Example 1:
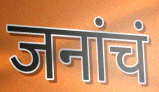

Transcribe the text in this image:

जनांचं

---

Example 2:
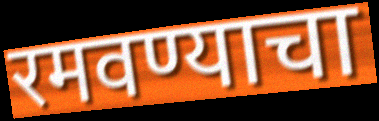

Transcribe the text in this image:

रमवण्याचा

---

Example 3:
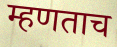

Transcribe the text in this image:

म्हणताच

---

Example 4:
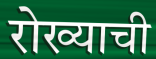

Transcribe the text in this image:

रोख्याची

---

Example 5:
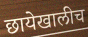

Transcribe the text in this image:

छायेखालीच